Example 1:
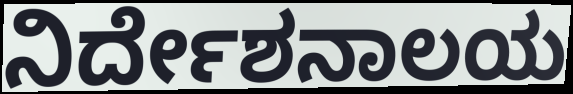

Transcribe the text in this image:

ನಿರ್ದೇಶನಾಲಯ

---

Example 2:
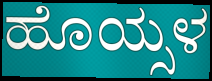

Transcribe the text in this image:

ಹೊಯ್ಸಳ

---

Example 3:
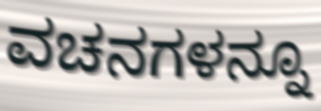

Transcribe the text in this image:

ವಚನಗಳನ್ನೂ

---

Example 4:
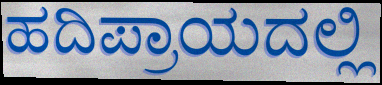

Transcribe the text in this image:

ಹದಿಪ್ರಾಯದಲ್ಲಿ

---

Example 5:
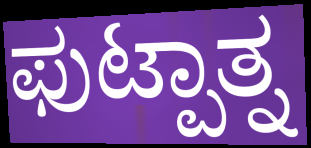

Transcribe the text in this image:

ಫುಟ್ಪಾತ್ನ